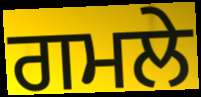
ਗਮਲੇ